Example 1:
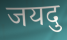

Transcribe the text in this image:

जयदु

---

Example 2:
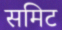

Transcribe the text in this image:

समिट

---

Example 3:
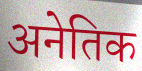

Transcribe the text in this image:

अनेतिक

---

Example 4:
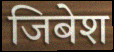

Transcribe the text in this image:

जिबेश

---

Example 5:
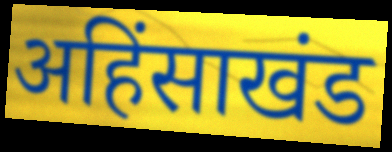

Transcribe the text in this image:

अहिंसाखंड